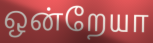
ஒன்றேயா